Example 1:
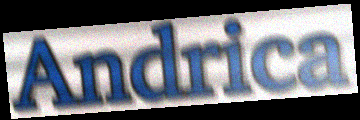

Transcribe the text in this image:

Andrica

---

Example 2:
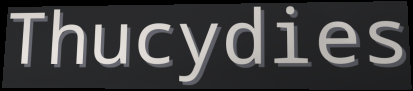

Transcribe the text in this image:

Thucydies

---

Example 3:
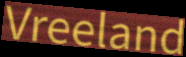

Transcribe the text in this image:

Vreeland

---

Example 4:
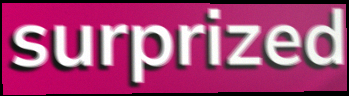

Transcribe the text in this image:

surprized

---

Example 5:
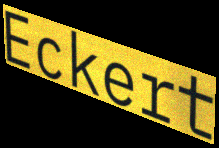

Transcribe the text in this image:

Eckert